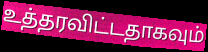
உத்தரவிட்டதாகவும்